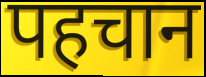
पहचान